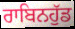
ਰਾਬਿਨਹੁੱਡ